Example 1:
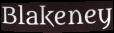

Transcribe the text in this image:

Blakeney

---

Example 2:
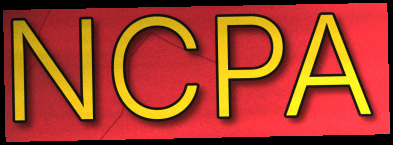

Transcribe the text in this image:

NCPA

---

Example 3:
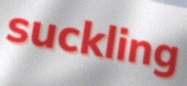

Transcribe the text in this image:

suckling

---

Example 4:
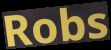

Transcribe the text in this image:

Robs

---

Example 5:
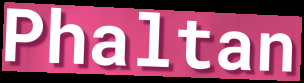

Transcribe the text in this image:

Phaltan